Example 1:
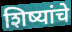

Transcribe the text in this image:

शिष्यांचे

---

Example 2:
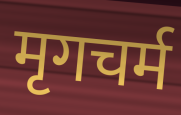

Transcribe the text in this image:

मृगचर्म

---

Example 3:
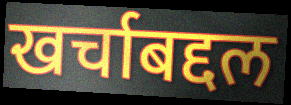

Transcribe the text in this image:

खर्चाबद्दल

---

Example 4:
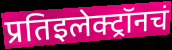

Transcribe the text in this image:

प्रतिइलेक्ट्रॉनचं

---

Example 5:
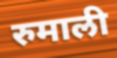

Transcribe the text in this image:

रुमाली